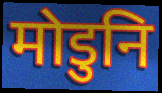
मोडुनि